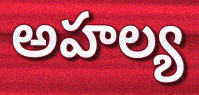
అహల్య